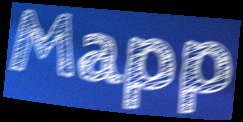
Mapp